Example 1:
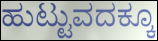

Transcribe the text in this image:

ಹುಟ್ಟುವದಕ್ಕೂ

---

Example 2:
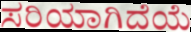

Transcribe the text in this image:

ಸರಿಯಾಗಿದೆಯೆ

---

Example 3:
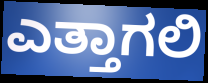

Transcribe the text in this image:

ಎತ್ತಾಗಲಿ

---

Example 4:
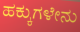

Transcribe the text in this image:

ಹಕ್ಕುಗಳೇನು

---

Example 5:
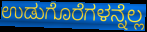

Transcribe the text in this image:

ಉಡುಗೊರೆಗಳನ್ನೆಲ್ಲ